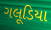
ગલૂડિયા